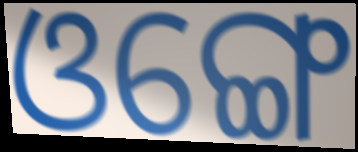
ଓଙ୍ଗେ